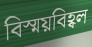
বিস্ময়বিহ্বল